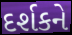
દર્શકને